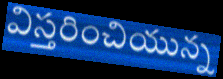
విస్తరించియున్న